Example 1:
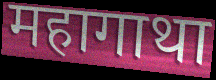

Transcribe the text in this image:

महागाथा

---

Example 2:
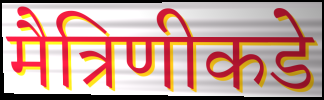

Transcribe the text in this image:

मैत्रिणीकडे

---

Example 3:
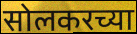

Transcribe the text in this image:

सोलकरच्या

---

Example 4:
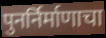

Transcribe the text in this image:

पुनर्निर्माणाचा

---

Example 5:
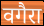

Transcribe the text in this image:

वगैरा